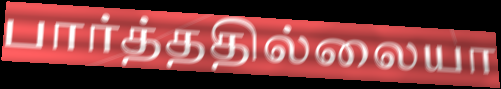
பார்த்ததில்லையா